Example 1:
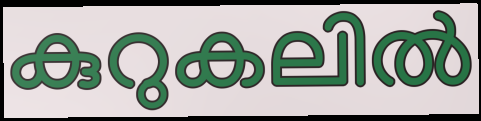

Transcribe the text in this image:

കുറുകലിൽ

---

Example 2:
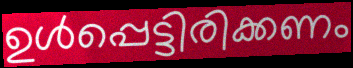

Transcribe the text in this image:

ഉൾപ്പെട്ടിരിക്കണം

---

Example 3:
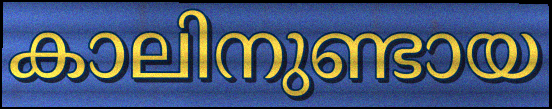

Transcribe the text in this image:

കാലിനുണ്ടായ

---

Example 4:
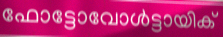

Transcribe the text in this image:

ഫോട്ടോവോൾട്ടായിക്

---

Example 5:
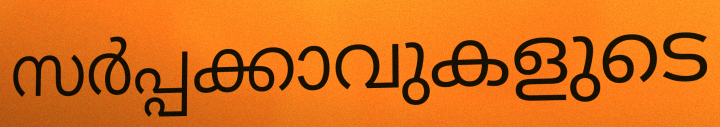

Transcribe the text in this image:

സർപ്പക്കാവുകളുടെ